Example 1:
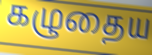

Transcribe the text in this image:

கழுதைய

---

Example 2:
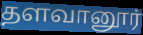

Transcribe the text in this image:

தளவானூர்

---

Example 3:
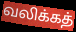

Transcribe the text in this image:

வலிக்கத்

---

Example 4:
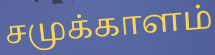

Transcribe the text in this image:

சமுக்காளம்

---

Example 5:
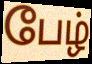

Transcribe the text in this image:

பேழ்